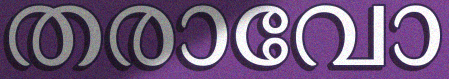
തരാവോ